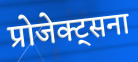
प्रोजेक्ट्सना